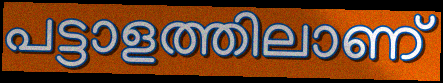
പട്ടാളത്തിലാണ്